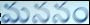
మననం